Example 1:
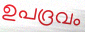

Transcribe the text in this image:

ഉപദ്രവം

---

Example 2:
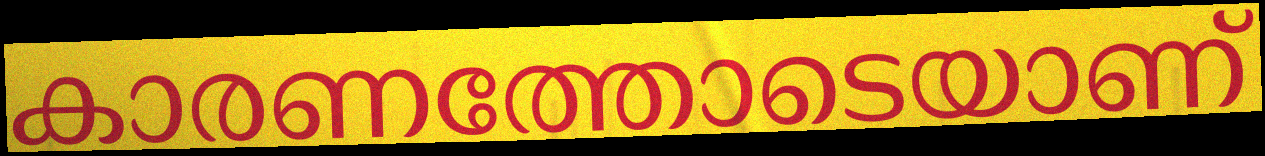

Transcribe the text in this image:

കാരണത്തോടെയാണ്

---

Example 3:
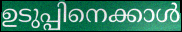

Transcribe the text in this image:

ഉടുപ്പിനെക്കാൾ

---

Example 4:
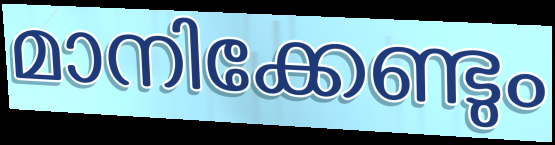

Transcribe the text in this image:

മാനിക്കേണ്ടും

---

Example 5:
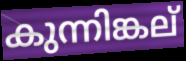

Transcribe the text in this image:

കുന്നിങ്കല്